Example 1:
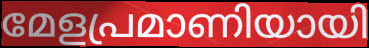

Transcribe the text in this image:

മേളപ്രമാണിയായി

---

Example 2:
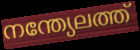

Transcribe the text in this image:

നന്ത്യേലത്ത്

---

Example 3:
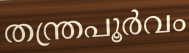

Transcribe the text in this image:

തന്ത്രപൂർവം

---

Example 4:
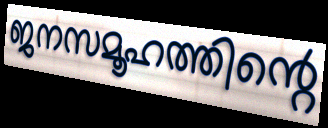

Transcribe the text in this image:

ജനസമൂഹത്തിന്റെ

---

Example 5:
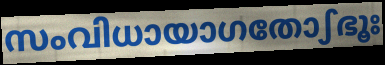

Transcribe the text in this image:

സംവിധായാഗതോഽഭൂഃ